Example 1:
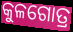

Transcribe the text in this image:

କୁଳଗୋତ୍ର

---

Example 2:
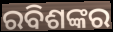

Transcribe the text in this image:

ରବିଶଙ୍କର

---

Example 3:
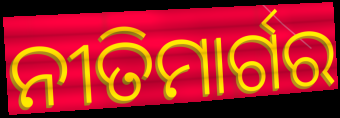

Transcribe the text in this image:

ନୀତିମାର୍ଗର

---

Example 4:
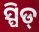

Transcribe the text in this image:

ସ୍ପିଡ୍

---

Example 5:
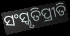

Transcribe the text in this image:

ସଂସ୍କୃତିପ୍ରୀତି